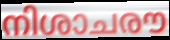
നിശാചരൗ